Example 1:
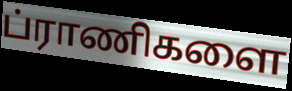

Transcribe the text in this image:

ப்ராணிகளை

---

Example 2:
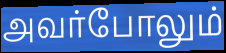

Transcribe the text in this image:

அவர்போலும்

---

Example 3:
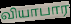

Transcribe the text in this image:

வியாபார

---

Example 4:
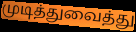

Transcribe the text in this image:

முடித்துவைத்து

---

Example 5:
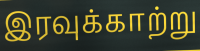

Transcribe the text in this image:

இரவுக்காற்று